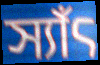
স্যাঁৎ